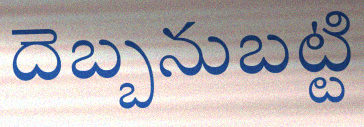
దెబ్బనుబట్టి